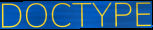
DOCTYPE